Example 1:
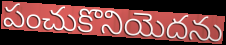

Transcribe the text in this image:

పంచుకొనియెదను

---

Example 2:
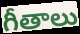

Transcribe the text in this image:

గీతాలు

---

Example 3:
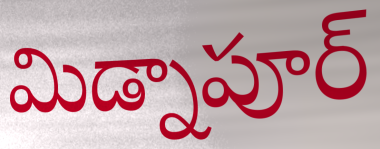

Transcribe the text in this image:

మిడ్నాపూర్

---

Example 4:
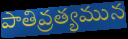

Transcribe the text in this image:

పాతివ్రత్యమున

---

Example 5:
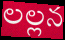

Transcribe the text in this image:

లల్లన